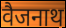
वैजनाथ